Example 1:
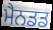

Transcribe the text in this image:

ਮੈਨਡਡ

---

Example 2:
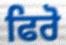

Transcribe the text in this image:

ਫਿਰੋ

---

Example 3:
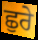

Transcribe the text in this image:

ਛੁਰੇ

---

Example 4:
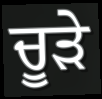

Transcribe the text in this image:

ਚੂੜੇ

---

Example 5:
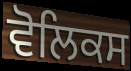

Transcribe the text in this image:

ਵੋਲਿਕਸ